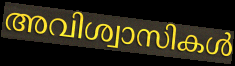
അവിശ്വാസികൾ